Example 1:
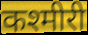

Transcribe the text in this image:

कश्मीरी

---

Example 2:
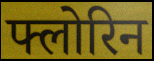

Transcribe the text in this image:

फ्लोरिन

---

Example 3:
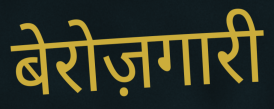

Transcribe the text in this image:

बेरोज़गारी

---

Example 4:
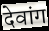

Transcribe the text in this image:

देवांग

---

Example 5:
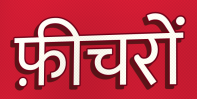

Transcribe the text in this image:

फ़ीचरों